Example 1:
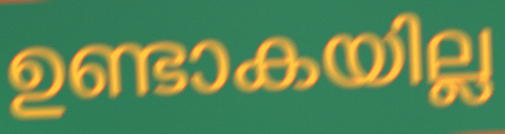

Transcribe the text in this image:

ഉണ്ടാകയില്ല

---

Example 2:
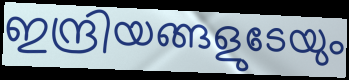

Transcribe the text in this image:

ഇന്ദ്രിയങ്ങളുടേയും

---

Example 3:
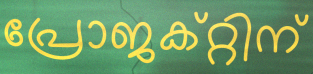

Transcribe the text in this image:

പ്രോജക്റ്റിന്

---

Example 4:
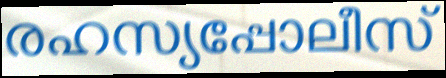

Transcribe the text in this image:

രഹസ്യപ്പോലീസ്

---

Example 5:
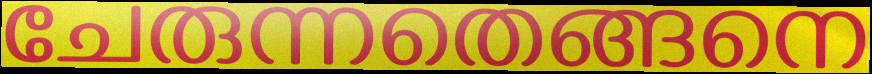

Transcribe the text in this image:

ചേരുന്നതെങ്ങനെ